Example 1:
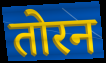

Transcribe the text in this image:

तोरन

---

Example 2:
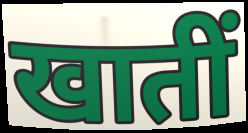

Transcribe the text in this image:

खातीं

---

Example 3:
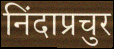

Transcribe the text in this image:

निंदाप्रचुर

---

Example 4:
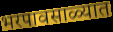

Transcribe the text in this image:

भरपावसाळ्यात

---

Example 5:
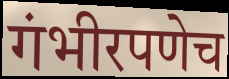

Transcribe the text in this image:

गंभीरपणेच